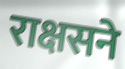
राक्षसने